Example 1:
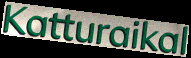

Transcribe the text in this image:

Katturaikal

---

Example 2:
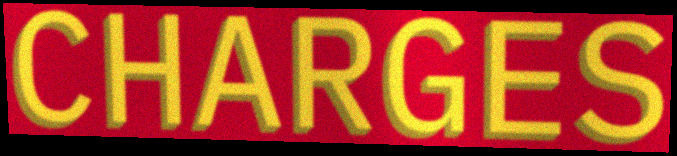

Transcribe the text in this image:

CHARGES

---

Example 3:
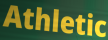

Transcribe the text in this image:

Athletic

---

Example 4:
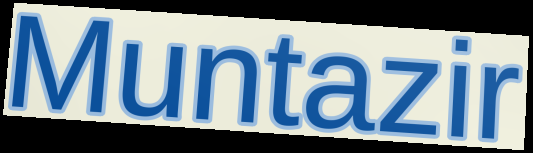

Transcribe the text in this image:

Muntazir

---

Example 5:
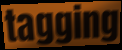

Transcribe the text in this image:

tagging